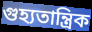
গুহ্যতান্ত্ৰিক